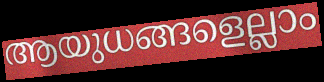
ആയുധങ്ങളെല്ലാം